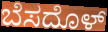
ಬೆಸದೊಳ್